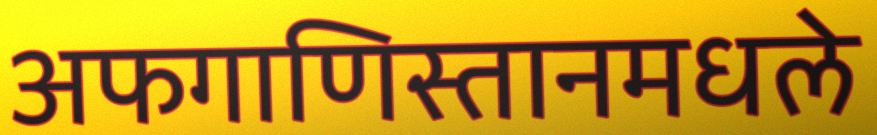
अफगाणिस्तानमधले